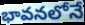
భావనలోనే